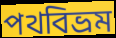
পথবিভ্রম